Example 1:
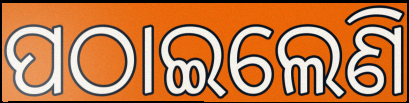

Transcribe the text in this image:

ପଠାଇଲେଣି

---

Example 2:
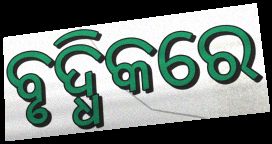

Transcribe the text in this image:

ବୃଦ୍ଧିକରେ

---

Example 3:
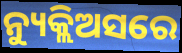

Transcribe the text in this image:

ନ୍ୟୁକ୍ଲିଅସରେ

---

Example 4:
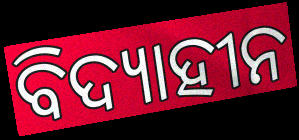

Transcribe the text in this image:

ବିଦ୍ୟାହୀନ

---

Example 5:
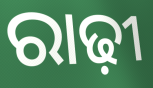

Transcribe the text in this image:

ରାଢ଼ୀ